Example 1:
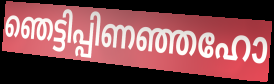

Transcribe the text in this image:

ഞെട്ടിപ്പിണഞ്ഞഹോ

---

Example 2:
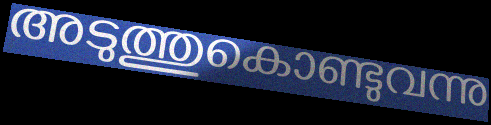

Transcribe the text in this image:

അടുത്തുകൊണ്ടുവന്നു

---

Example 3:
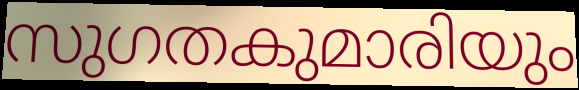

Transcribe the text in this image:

സുഗതകുമാരിയും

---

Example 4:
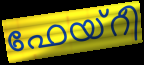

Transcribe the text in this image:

ഫേയ്റീ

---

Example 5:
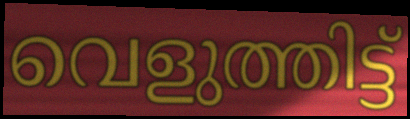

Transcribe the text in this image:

വെളുത്തിട്ട്